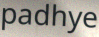
padhye